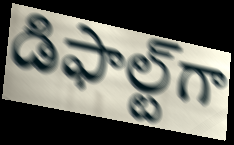
డిఫాల్ట్‌గా